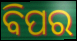
ବିପର